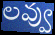
లవ్వు